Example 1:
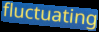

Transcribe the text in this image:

fluctuating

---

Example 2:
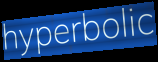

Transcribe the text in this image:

hyperbolic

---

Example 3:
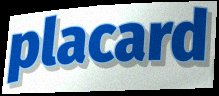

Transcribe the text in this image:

placard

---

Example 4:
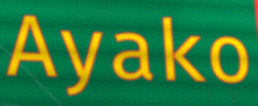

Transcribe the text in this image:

Ayako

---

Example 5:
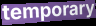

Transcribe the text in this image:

temporary